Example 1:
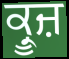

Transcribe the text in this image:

ਕ੍ਰੂਜ਼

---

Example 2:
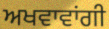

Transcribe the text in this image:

ਅਖਵਾਵਾਂਗੀ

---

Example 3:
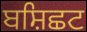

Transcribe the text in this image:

ਬਸ਼ਿਛਟ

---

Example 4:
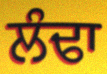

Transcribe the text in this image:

ਲੰਢਾ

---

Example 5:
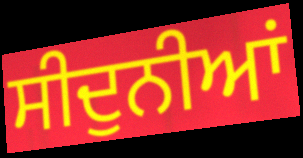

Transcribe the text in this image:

ਸੀਦੁਨੀਆਂ